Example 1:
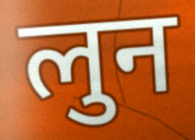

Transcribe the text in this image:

लुन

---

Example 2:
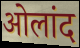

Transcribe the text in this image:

ओलांद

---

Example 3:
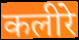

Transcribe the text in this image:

कलीरे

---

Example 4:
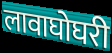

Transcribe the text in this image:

लावाघोघरी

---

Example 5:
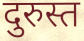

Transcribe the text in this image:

दुरुस्त